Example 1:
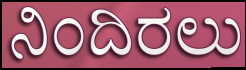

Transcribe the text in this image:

ನಿಂದಿರಲು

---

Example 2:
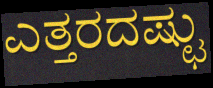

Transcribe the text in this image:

ಎತ್ತರದಷ್ಟು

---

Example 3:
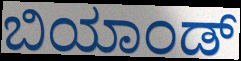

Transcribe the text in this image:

ಬಿಯಾಂಡ್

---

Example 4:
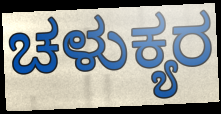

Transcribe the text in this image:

ಚಳುಕ್ಯರ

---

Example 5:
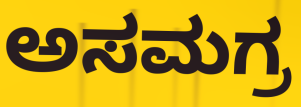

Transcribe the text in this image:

ಅಸಮಗ್ರ